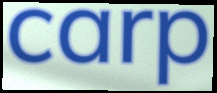
carp